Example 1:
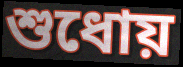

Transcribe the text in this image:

শুধোয়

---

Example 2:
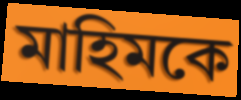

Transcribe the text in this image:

মাহিমকে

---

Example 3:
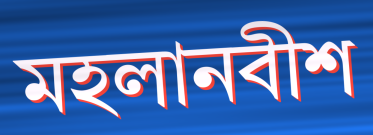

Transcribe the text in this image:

মহলানবীশ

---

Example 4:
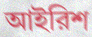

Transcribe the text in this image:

আইরিশ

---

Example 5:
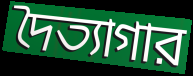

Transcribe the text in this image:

দৈত্যাগার